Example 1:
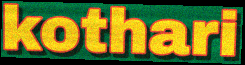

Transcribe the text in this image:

kothari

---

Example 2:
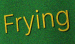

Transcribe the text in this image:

Frying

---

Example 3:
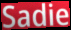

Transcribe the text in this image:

Sadie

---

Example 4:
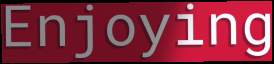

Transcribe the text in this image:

Enjoying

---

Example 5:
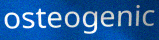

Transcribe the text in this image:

osteogenic